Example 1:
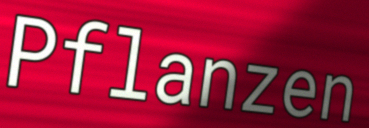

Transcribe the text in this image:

Pflanzen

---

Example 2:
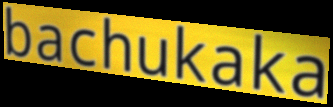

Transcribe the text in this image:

bachukaka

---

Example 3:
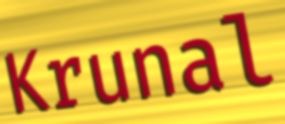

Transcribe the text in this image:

Krunal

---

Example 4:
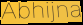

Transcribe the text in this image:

Abhijna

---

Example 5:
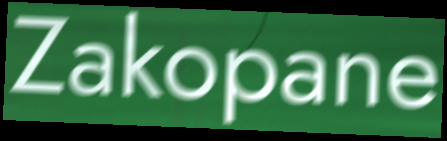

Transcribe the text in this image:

Zakopane